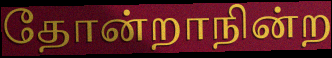
தோன்றாநின்ற